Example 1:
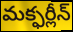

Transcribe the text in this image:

మక్ఫర్లీన్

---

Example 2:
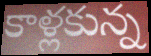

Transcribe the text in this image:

కాళ్లకున్న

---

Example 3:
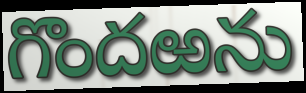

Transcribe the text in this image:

గొందఱను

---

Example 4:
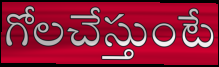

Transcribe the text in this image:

గోలచేస్తుంటే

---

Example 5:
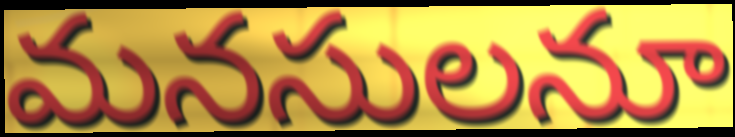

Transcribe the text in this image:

మనసులనూ